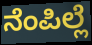
ನೆಂಪಿಲ್ಲೆ